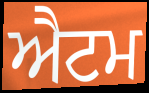
ਐਟਮ